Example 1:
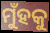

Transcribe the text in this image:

ମୁଁହକୁ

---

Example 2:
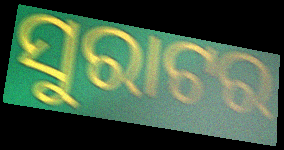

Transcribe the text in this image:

ସୁରାଟର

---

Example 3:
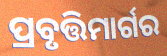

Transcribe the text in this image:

ପ୍ରବୃତ୍ତିମାର୍ଗର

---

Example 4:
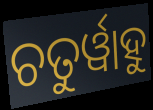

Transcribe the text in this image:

ଚତୁର୍ୱାହୁ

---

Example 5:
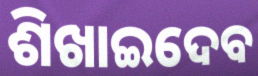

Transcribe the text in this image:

ଶିଖାଇଦେବ